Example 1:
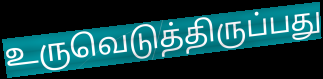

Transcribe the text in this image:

உருவெடுத்திருப்பது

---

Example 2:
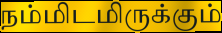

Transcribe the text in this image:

நம்மிடமிருக்கும்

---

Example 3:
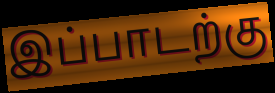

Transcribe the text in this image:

இப்பாடற்கு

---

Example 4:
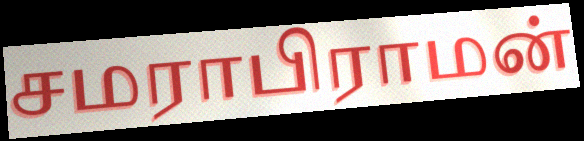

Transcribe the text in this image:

சமராபிராமன்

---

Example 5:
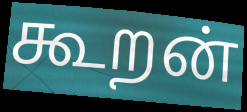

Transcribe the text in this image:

கூறன்